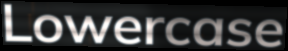
Lowercase